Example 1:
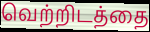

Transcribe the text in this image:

வெற்றிடத்தை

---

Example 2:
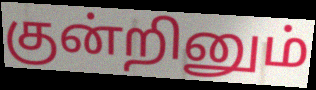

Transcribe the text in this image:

குன்றினும்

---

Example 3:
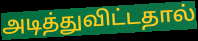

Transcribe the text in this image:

அடித்துவிட்டதால்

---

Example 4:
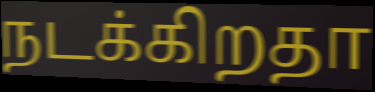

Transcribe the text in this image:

நடக்கிறதா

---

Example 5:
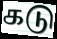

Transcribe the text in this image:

கடு